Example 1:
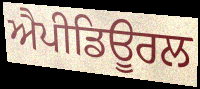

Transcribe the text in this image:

ਐਪੀਡਿਊਰਲ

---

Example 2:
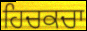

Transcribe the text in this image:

ਹਿਚਕਚਾ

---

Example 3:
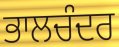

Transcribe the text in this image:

ਭਾਲਚੰਦਰ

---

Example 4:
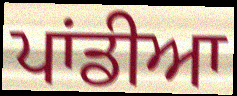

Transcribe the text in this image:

ਪਾਂਡੀਆ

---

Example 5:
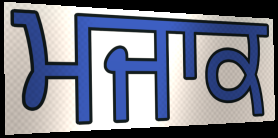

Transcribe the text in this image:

ਮਜਾਕ